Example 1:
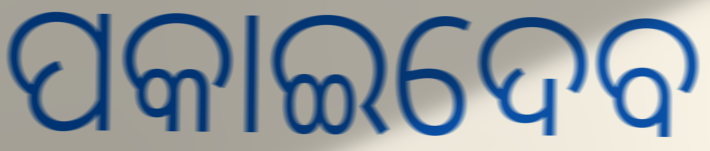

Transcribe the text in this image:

ପକାଇଦେବ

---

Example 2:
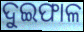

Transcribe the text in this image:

ଦୁଇଫାଳ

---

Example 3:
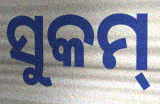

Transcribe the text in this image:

ସୁକମ୍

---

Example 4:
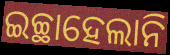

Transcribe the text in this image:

ଇଚ୍ଛାହେଲାନି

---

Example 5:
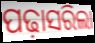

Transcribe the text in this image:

ପଢ଼ାସରିଲା